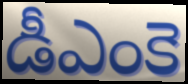
డీఎంకె